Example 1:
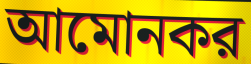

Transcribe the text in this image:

আমোনকর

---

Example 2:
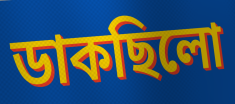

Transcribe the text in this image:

ডাকছিলো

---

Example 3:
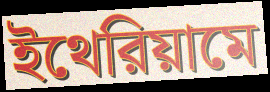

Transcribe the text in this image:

ইথেরিয়ামে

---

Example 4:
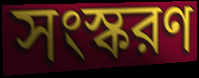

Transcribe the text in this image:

সংস্করণ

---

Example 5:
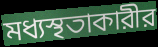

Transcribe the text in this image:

মধ্যস্থতাকারীর